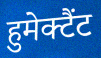
हुमेक्टैंट